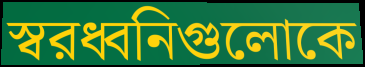
স্বরধ্বনিগুলোকে